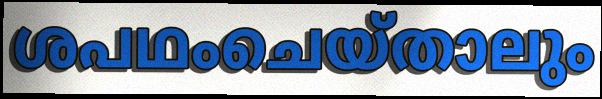
ശപഥംചെയ്താലും